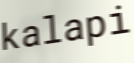
kalapi